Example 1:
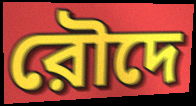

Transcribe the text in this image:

রৌদে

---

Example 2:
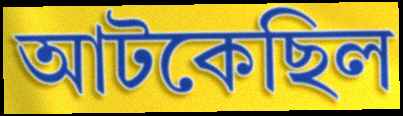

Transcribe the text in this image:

আটকেছিল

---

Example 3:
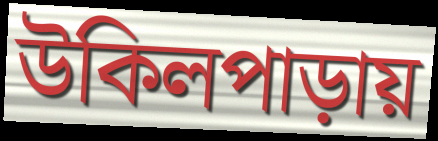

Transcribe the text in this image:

উকিলপাড়ায়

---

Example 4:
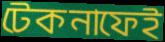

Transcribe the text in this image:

টেকনাফেই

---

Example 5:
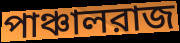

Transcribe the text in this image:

পাঞ্চালরাজ